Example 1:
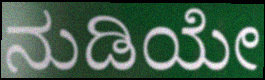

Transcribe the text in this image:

ನುಡಿಯೇ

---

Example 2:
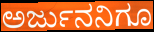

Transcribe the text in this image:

ಅರ್ಜುನನಿಗೂ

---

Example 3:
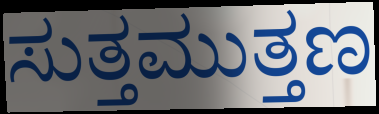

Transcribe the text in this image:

ಸುತ್ತಮುತ್ತಣ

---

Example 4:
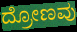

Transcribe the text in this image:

ದ್ರೋಣವು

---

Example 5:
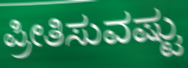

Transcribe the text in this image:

ಪ್ರೀತಿಸುವಷ್ಟು